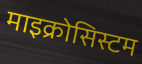
माइक्रोसिस्टम